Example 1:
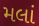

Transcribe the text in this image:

મલાં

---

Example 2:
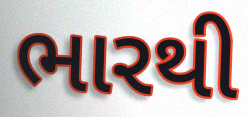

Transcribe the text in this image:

ભારથી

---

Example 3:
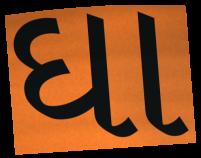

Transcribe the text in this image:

ઘા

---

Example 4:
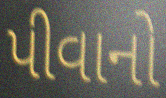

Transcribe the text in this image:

પીવાનો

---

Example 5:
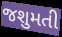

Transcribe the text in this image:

જશુમતી